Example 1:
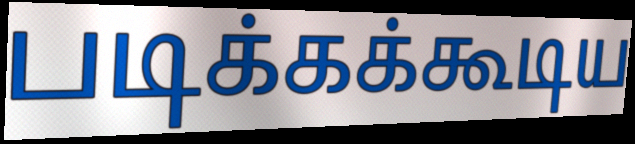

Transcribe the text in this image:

படிக்கக்கூடிய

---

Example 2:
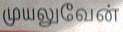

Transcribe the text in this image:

முயலுவேன்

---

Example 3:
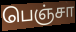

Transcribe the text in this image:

பெஞ்சா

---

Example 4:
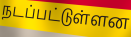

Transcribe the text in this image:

நடப்பட்டுள்ளன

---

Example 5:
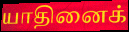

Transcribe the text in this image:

யாதினைக்